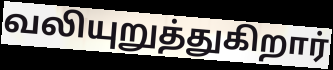
வலியுறுத்துகிறார்